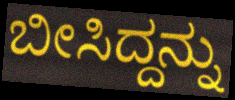
ಬೀಸಿದ್ದನ್ನು